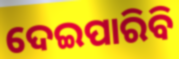
ଦେଇପାରିବି